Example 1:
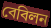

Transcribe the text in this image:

বেবিলন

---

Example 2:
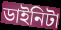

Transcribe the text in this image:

ডাইনিটা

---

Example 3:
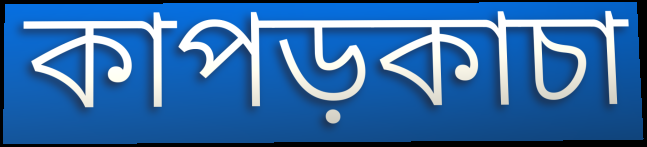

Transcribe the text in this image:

কাপড়কাচা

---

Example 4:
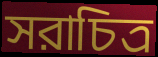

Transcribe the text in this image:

সরাচিত্র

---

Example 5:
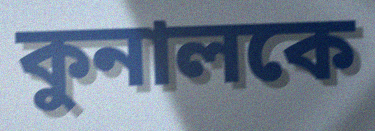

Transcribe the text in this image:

কুনালকে